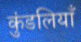
कुंडलियाँ